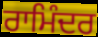
ਰਾਮਿੰਦਰ